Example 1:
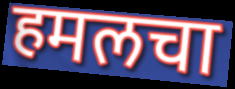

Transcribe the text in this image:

हमलचा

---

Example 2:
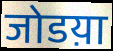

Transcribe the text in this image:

जोडय़ा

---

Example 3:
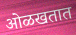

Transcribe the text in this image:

ओळखतात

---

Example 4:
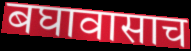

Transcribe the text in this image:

बघावासाच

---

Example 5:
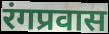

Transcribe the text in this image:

रंगप्रवास